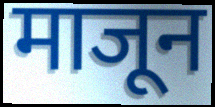
माजून